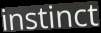
instinct